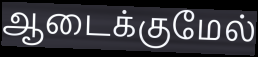
ஆடைக்குமேல்